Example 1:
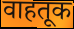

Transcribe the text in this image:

वाहतूक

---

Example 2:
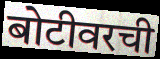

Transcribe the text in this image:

बोटीवरची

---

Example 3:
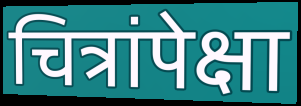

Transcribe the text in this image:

चित्रांपेक्षा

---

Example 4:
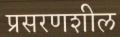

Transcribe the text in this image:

प्रसरणशील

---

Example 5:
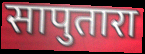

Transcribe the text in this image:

सापुतारा